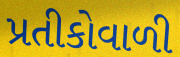
પ્રતીકોવાળી